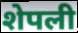
शेपली